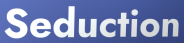
Seduction